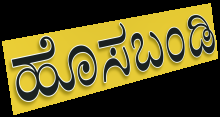
ಹೊಸಬಂಡಿ